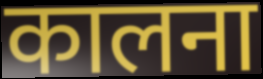
कालना